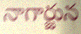
నాగార్జున